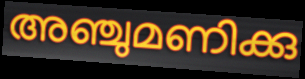
അഞ്ചുമണിക്കു